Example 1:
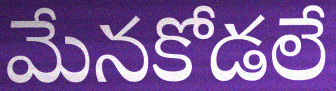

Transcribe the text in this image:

మేనకోడలే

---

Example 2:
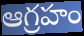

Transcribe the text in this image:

ఆగ్రహం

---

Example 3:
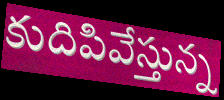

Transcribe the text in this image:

కుదిపివేస్తున్న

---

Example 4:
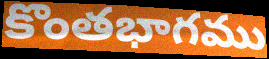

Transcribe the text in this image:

కొంతభాగము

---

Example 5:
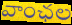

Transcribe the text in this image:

వాంఛల